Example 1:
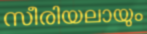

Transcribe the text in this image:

സീരിയലായും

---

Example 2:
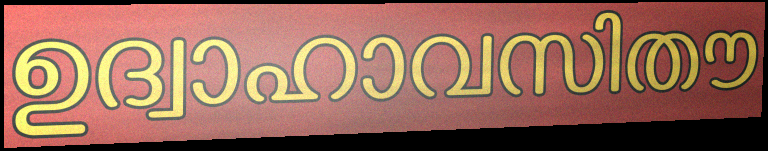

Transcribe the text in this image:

ഉദ്വാഹാവസിതൗ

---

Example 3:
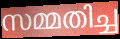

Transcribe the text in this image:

സമ്മതിച്ച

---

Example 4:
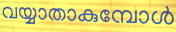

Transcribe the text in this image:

വയ്യാതാകുമ്പോൾ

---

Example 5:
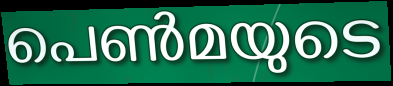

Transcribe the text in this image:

പെൺമയുടെ